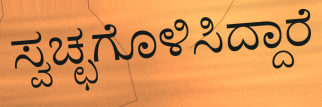
ಸ್ವಚ್ಛಗೊಳಿಸಿದ್ದಾರೆ